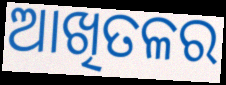
ଆଖିତଳର